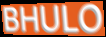
BHULO